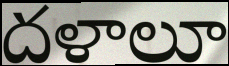
దళాలూ